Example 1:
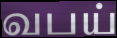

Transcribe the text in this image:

வபய்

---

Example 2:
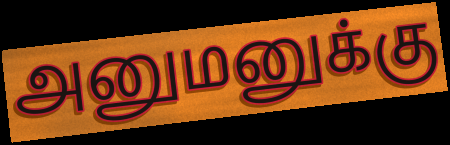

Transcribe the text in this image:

அனுமனுக்கு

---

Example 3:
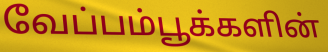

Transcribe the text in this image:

வேப்பம்பூக்களின்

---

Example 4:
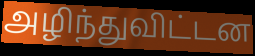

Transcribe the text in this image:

அழிந்துவிட்டன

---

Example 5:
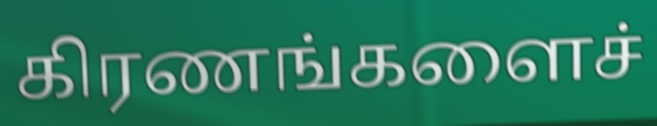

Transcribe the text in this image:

கிரணங்களைச்